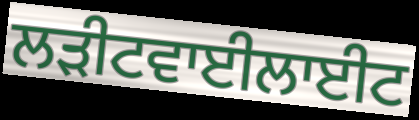
ਲੜੀਟਵਾਈਲਾਈਟ